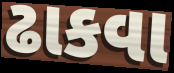
ઢાકવા